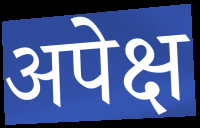
अपेक्ष